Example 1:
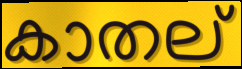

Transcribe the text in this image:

കാതല്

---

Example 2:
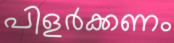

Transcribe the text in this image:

പിളർക്കണം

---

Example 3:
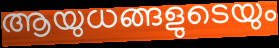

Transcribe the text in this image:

ആയുധങ്ങളുടെയും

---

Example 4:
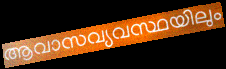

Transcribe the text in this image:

ആവാസവ്യവസ്ഥയിലും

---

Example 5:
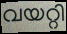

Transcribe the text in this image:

വയറ്റി